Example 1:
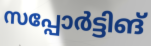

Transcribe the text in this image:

സപ്പോർട്ടിങ്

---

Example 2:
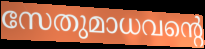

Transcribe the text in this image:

സേതുമാധവന്റെ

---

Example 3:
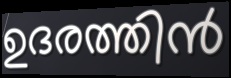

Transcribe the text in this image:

ഉദരത്തിൻ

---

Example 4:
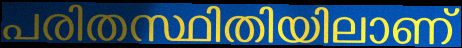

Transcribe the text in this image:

പരിതസ്ഥിതിയിലാണ്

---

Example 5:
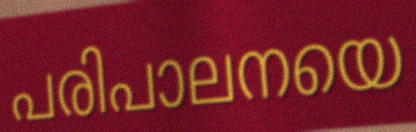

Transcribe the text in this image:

പരിപാലനയെ